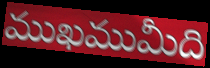
ముఖముమీది